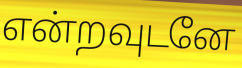
என்றவுடனே